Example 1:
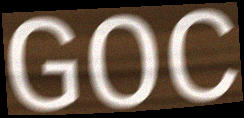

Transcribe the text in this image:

GOC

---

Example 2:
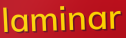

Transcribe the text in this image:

laminar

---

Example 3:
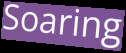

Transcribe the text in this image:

Soaring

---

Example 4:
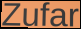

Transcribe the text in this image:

Zufar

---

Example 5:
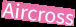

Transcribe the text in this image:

Aircross